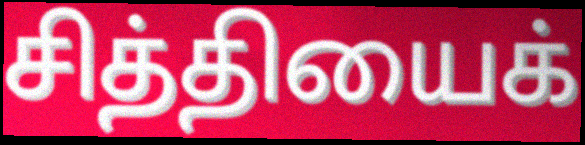
சித்தியைக்